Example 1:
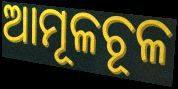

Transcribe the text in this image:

ଆମୂଳଚୂଳ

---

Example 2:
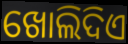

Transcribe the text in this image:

ଖୋଲିଦିଏ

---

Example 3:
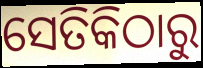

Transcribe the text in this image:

ସେତିକିଠାରୁ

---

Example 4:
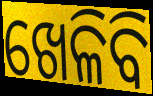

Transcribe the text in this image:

ଖେଳିବି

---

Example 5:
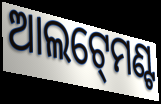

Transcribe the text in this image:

ଆଲଟ୍‍ମେଣ୍ଟ